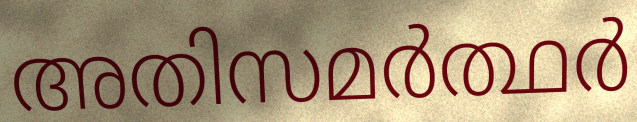
അതിസമർത്ഥർ